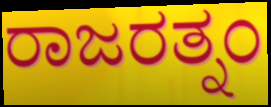
ರಾಜರತ್ನಂ